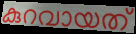
കുറവായത്